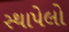
સ્થાપેલો